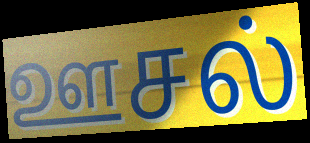
ஊசல்